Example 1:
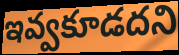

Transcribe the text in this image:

ఇవ్వకూడదని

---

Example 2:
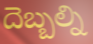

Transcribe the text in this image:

దెబ్బల్ని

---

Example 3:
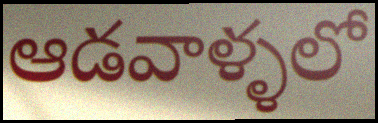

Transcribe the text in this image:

ఆడవాళ్ళలో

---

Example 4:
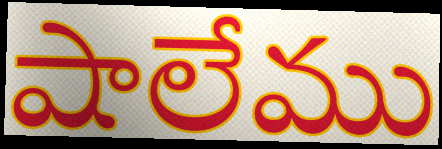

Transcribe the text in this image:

షాలేము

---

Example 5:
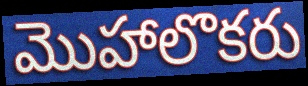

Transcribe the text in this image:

మొహాలొకరు